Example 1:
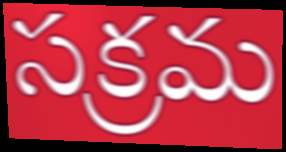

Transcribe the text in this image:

సక్రమ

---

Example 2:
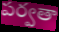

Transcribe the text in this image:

పర్వతా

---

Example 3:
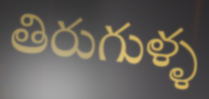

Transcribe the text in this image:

తిరుగుళ్ళ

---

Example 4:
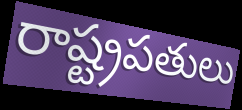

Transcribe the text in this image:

రాష్ట్రపతులు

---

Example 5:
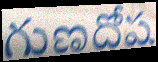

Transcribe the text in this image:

గుణదోష